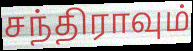
சந்திராவும்